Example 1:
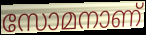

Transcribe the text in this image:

സോമനാണ്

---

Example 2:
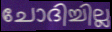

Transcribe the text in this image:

ചോദിച്ചില്ല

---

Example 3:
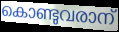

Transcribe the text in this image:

കൊണ്ടുവരാന്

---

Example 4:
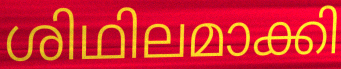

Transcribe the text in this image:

ശിഥിലമാക്കി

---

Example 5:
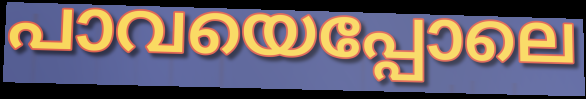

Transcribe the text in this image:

പാവയെപ്പോലെ